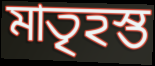
মাতৃহস্ত